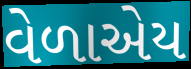
વેળાએય